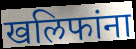
खलिफांना